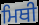
ਮਿਥੀ